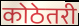
कोठेतरी